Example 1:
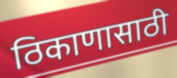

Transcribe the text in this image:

ठिकाणासाठी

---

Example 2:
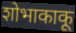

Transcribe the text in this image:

शोभाकाकू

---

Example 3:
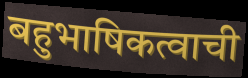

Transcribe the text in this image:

बहुभाषिकत्वाची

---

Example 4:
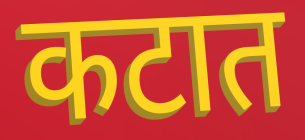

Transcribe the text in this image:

कटात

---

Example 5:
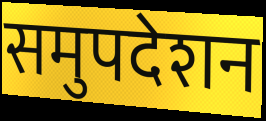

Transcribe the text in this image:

समुपदेशन